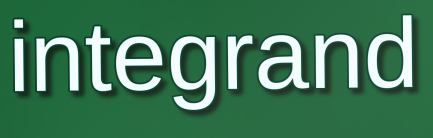
integrand